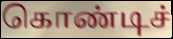
கொண்டிச்